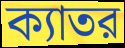
ক্যাতর